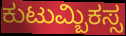
ಕುಟುಮ್ಬಿಕಸ್ಸ